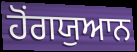
ਹੋਂਗਯੁਆਨ